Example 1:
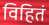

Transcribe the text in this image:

विहितं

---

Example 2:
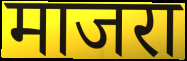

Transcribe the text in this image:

माजरा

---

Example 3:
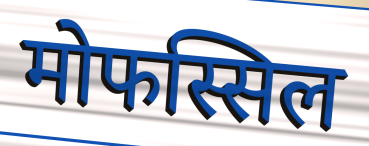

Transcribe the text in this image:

मोफस्सिल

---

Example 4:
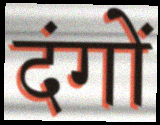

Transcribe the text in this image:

दंगों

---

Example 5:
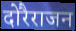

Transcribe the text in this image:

दोरैराजन